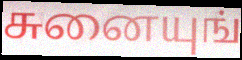
சுனையுங்